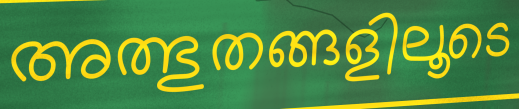
അത്ഭുതങ്ങളിലൂടെ